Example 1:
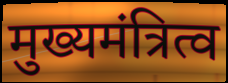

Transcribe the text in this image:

मुख्यमंत्रित्व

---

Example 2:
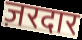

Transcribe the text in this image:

ज़रदार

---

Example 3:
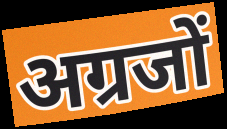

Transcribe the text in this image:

अग्रजों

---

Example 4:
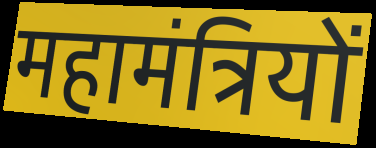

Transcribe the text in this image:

महामंत्रियों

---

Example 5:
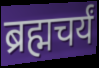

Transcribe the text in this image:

ब्रह्मचर्यं